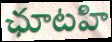
ఛూటహి